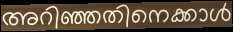
അറിഞ്ഞതിനെക്കാൾ